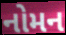
નોમન